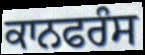
ਕਾਨਫਰੰਸ